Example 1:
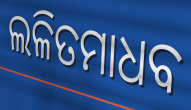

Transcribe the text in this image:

ଲଳିତମାଧବ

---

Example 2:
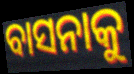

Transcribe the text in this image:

ବାସନାକୁ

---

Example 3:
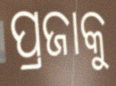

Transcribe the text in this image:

ପ୍ରଜାକୁ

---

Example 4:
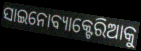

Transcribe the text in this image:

ସାଇନୋବ୍ୟାକ୍ଟେରିଆକୁ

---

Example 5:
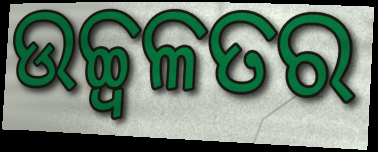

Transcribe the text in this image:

ଉଚ୍ଚ୍ୱଳତର